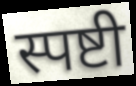
स्पष्टी